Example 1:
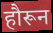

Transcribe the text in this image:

हौरून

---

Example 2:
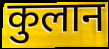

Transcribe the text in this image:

कुलान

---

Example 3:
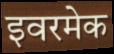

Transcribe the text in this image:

इवरमेक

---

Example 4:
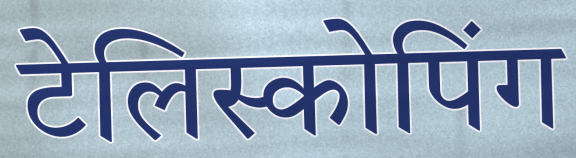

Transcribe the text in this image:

टेलिस्कोपिंग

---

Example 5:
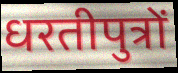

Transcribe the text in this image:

धरतीपुत्रों